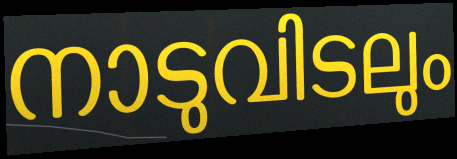
നാടുവിടലും